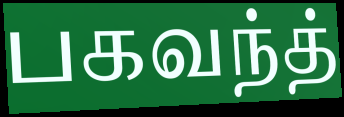
பகவந்த்